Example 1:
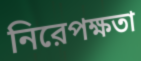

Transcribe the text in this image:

নিরেপক্ষতা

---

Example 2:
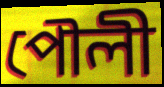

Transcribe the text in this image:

পৌলী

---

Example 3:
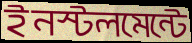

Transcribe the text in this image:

ইনস্টলমেন্টে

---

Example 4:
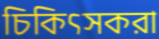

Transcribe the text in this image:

চিকিৎসকরা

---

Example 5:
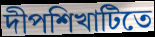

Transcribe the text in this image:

দীপশিখাটিতে